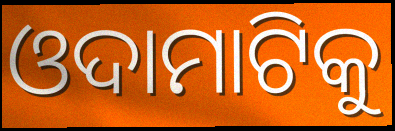
ଓଦାମାଟିକୁ